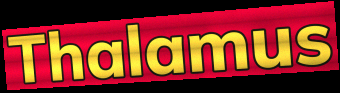
Thalamus